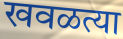
खवळत्या